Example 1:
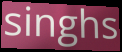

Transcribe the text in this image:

singhs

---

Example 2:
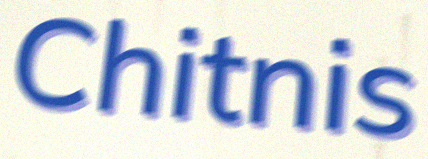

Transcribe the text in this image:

Chitnis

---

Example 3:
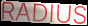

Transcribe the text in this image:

RADIUS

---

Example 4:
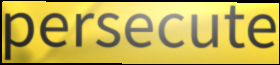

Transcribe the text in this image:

persecute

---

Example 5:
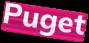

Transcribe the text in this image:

Puget